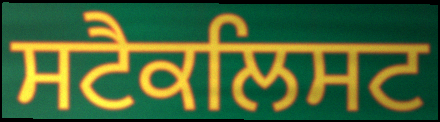
ਸਟੈਕਲਿਸਟ